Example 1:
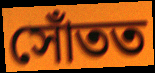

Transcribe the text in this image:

সোঁতত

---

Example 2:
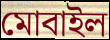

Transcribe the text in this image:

মোবাইল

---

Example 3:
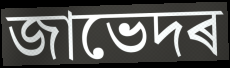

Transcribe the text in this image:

জাভেদৰ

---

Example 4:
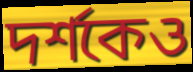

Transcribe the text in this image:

দৰ্শকেও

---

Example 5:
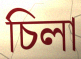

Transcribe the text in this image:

চিলা